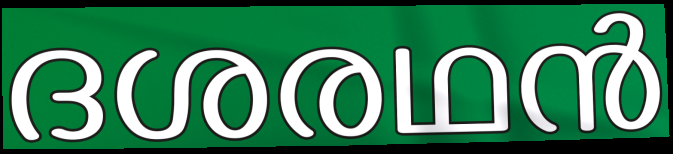
ദശരഥൻ